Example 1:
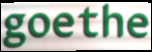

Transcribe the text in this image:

goethe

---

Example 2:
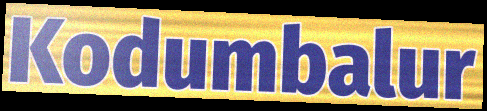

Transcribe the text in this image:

Kodumbalur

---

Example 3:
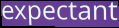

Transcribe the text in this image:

expectant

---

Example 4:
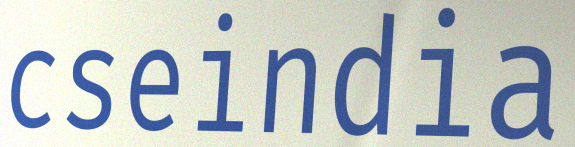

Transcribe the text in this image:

cseindia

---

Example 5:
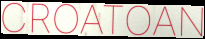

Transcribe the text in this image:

CROATOAN